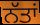
ਨੱਤਾਂ